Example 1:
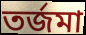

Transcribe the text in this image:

তর্জমা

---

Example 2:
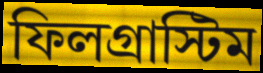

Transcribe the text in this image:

ফিলগ্রাস্টিম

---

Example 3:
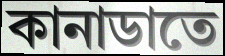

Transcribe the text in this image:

কানাডাতে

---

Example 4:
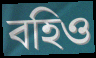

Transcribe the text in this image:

বহিও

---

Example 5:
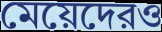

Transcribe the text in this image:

মেয়েদেরও